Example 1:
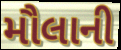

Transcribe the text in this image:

મૌલાની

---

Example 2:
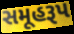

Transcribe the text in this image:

સમૂહરૂપ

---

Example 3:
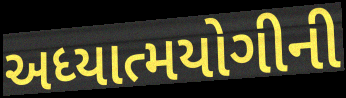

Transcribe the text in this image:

અધ્યાત્મયોગીની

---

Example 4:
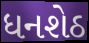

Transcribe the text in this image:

ધનશેઠ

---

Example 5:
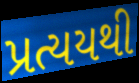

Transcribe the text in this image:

પ્રત્યયથી